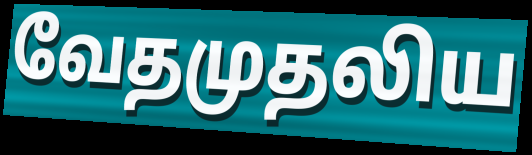
வேதமுதலிய